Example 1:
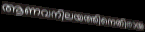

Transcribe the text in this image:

ആണവനിലയത്തിനെതിരായ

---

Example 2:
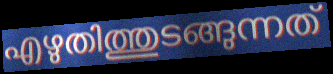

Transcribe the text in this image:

എഴുതിത്തുടങ്ങുന്നത്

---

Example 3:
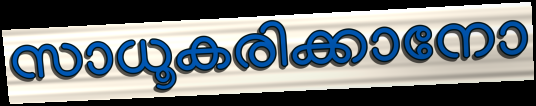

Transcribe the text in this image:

സാധൂകരിക്കാനോ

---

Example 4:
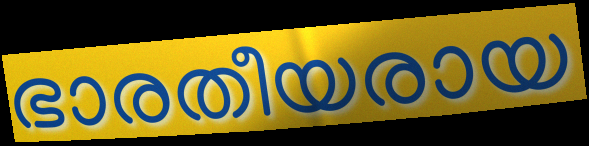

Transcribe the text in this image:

ഭാരതീയരായ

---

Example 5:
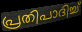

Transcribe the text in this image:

പ്രതിപാദിച്ച്